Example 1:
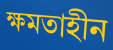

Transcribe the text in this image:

ক্ষমতাহীন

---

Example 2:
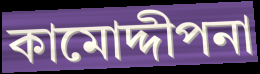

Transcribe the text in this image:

কামোদ্দীপনা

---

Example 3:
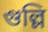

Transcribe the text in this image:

গুল্লি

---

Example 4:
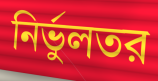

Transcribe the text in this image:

নির্ভুলতর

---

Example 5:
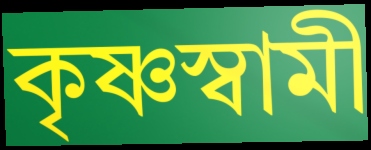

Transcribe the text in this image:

কৃষ্ণস্বামী